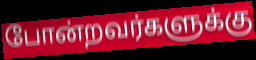
போன்றவர்களுக்கு